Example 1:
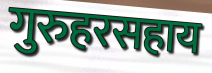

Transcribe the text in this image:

गुरुहरसहाय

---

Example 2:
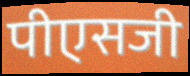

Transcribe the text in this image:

पीएसजी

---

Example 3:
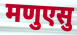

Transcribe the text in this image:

मणुएसु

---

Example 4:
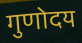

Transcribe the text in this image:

गुणोदय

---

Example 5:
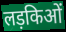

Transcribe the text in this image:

लड़किओं